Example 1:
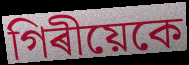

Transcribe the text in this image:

গিৰীয়েকে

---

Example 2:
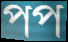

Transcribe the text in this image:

পপ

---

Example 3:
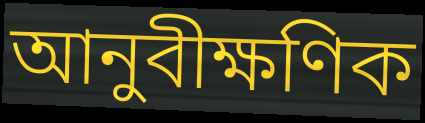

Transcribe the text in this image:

আনুবীক্ষণিক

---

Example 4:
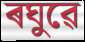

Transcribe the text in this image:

ৰঘুৱে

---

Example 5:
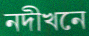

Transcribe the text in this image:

নদীখনে